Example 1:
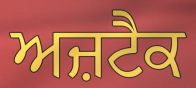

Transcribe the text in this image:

ਅਜ਼ਟੈਕ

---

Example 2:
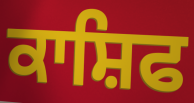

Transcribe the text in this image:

ਕਾਸ਼ਿਫ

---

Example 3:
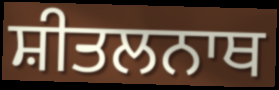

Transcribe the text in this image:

ਸ਼ੀਤਲਨਾਥ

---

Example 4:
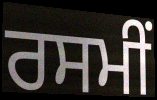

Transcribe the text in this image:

ਰਸਮੀਂ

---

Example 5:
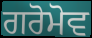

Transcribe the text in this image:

ਗਰੋਮੋਵ